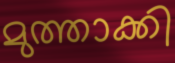
മുത്താക്കി